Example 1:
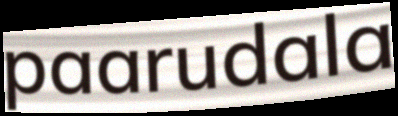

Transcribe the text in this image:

paarudala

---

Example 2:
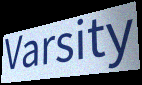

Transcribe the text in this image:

Varsity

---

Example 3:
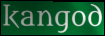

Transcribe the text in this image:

kangod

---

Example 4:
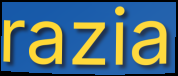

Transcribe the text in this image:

razia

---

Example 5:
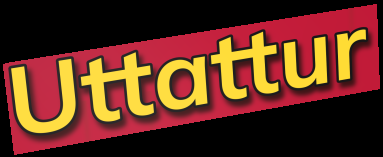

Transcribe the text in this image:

Uttattur